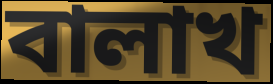
বালাখ